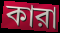
কারা